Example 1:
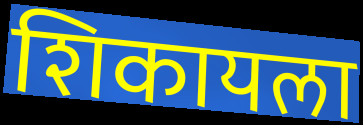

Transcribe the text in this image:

शिकायला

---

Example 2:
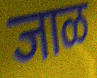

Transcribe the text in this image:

जाळ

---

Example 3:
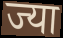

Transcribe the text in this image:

ज्या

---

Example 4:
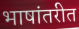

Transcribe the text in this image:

भाषांतरीत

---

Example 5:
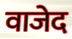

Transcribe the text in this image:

वाजेद